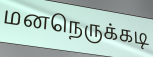
மனநெருக்கடி